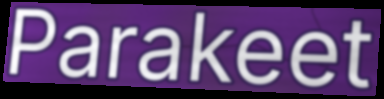
Parakeet